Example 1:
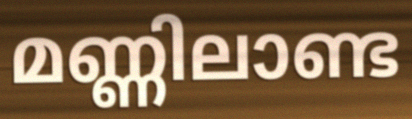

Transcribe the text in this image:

മണ്ണിലാണ്ട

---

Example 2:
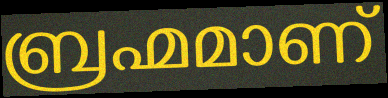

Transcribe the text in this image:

ബ്രഹ്മമാണ്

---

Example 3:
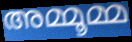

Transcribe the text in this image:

അമ്മൂമ്മ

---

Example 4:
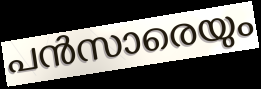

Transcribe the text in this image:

പൻസാരെയും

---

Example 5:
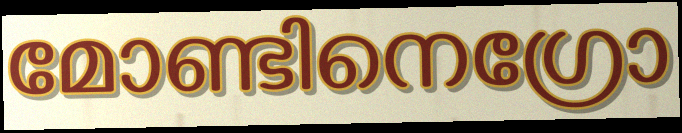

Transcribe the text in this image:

മോണ്ടിനെഗ്രോ